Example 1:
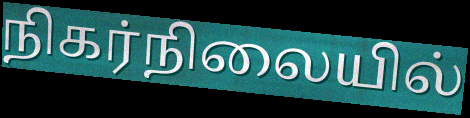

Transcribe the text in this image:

நிகர்நிலையில்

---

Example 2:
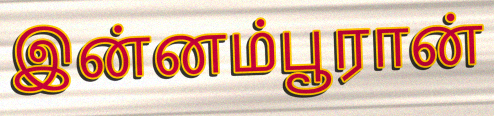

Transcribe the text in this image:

இன்னம்பூரான்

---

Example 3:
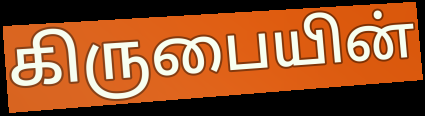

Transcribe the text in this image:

கிருபையின்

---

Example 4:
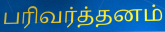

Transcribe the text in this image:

பரிவர்த்தனம்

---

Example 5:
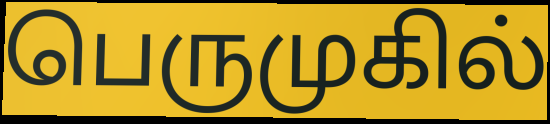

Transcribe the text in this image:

பெருமுகில்